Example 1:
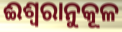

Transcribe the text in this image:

ଈଶ୍ଵରାନୁକୂଳ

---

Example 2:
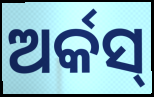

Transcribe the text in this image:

ଅର୍କସ୍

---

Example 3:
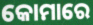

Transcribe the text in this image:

କୋମାରେ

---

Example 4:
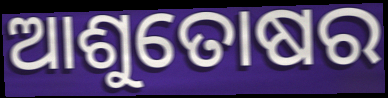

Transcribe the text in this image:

ଆଶୁତୋଷର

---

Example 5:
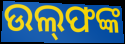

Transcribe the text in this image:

ଉଲ୍‌ଫଙ୍କ